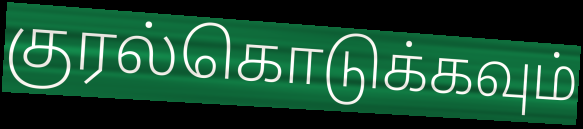
குரல்கொடுக்கவும்